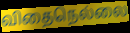
விதைநெல்லை